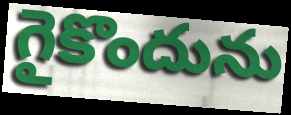
గైకొందును